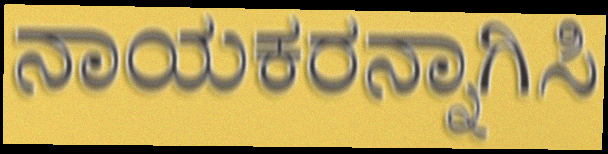
ನಾಯಕರನ್ನಾಗಿಸಿ